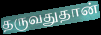
தருவதுதான்